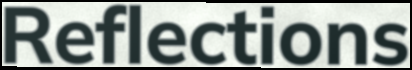
Reflections